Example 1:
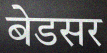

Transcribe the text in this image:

बेडसर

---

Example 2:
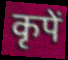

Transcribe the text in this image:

कृपें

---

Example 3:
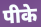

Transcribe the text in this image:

पीके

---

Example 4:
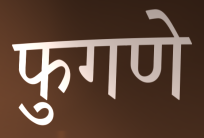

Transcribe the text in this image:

फुगणे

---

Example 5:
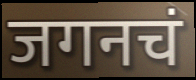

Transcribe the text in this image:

जगनचं